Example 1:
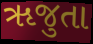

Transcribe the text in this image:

ૠજુતા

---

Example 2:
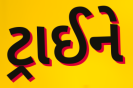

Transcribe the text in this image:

ટ્રાઈને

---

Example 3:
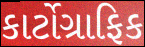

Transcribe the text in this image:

કાર્ટોગ્રાફિક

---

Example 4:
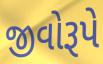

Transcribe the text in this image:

જીવોરૂપે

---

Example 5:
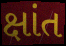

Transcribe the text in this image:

ક્ષાંત